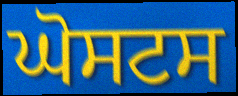
ਘੋਸਟਸ